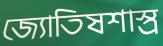
জ্যোতিষশাস্ত্র